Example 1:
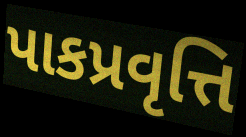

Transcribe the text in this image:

પાકપ્રવૃત્તિ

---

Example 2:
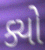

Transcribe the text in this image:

ક્યો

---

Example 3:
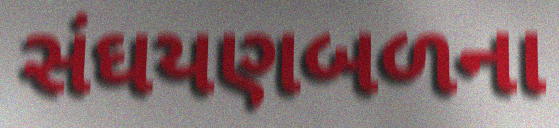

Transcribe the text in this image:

સંઘયણબળના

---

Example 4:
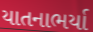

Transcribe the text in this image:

યાતનાભર્યા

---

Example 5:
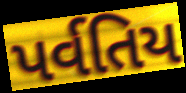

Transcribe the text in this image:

પર્વતિય